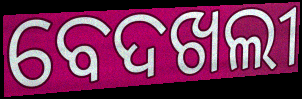
ବେଦଖଲୀ